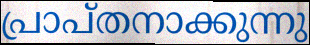
പ്രാപ്തനാക്കുന്നു